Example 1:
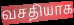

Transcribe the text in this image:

வசதியாக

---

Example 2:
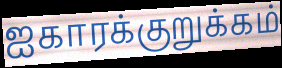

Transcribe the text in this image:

ஐகாரக்குறுக்கம்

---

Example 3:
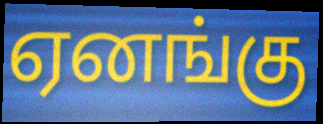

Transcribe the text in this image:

ஏனங்கு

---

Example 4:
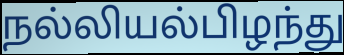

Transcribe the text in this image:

நல்லியல்பிழந்து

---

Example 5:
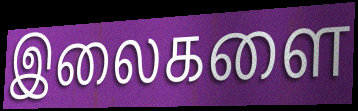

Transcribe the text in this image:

இலைகளை